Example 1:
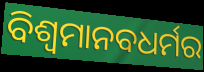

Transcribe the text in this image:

ବିଶ୍ବମାନବଧର୍ମର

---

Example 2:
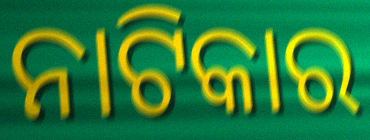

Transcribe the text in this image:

ନାଟିକାର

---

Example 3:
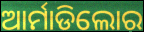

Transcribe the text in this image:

ଆର୍ମାଡିଲୋର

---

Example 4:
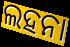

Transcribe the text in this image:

ଲହନା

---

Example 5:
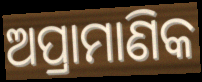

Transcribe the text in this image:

ଅପ୍ରାମାଣିକ